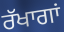
ਰੱਖਾਗਾਂ